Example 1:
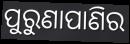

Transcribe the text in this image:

ପୁରୁଣାପାଣିର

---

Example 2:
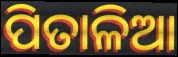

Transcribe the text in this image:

ପିତାଳିଆ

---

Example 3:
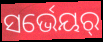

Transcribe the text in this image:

ସର୍ଭେୟର୍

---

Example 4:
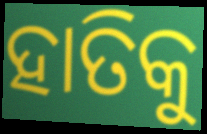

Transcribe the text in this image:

ହାତିକୁ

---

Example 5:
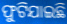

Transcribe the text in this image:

ଫୁଟିଯାଇଛି